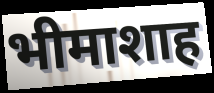
भीमाशाह